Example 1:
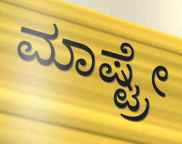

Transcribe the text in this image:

ಮಾಷ್ಟ್ರೇ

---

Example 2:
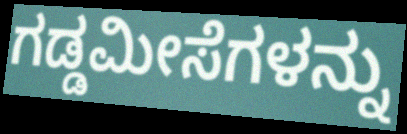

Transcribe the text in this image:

ಗಡ್ಡಮೀಸೆಗಳನ್ನು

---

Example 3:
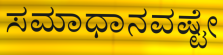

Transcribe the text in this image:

ಸಮಾಧಾನವಷ್ಟೇ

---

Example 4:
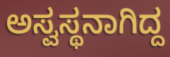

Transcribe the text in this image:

ಅಸ್ವಸ್ಥನಾಗಿದ್ದ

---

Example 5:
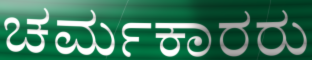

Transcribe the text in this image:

ಚರ್ಮಕಾರರು